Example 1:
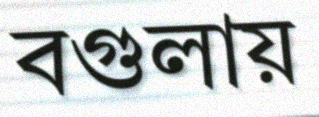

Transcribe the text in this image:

বগুলায়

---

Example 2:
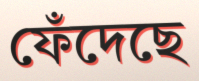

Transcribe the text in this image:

ফেঁদেছে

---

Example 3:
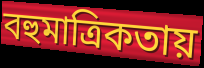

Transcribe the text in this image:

বহুমাত্রিকতায়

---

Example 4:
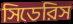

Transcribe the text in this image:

সিডেরিস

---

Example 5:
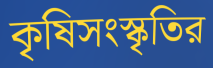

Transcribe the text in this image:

কৃষিসংস্কৃতির